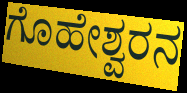
ಗೊಹೇಶ್ವರನ